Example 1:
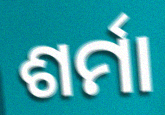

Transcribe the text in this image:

ଶର୍ମା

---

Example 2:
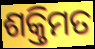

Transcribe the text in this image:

ଶକ୍ତିମତ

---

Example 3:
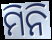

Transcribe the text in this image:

ମିନି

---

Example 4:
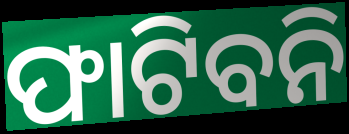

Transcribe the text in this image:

ଫାଟିବନି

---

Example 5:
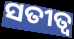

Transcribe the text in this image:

ସତୀତ୍ବ